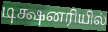
டிக்ஷனரியில்